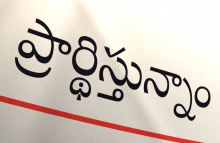
ప్రార్థిస్తున్నాం